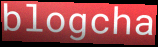
blogcha